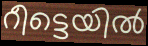
റീട്ടെയിൽ